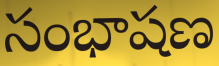
సంభాషణ